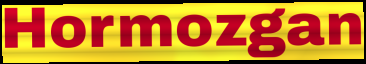
Hormozgan